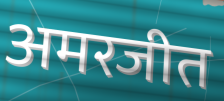
अमरजीत